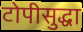
टोपीसुद्धा